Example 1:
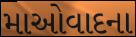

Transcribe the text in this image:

માઓવાદના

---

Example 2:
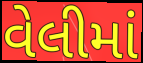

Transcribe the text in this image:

વેલીમાં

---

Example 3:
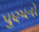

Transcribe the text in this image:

પુણ્યનો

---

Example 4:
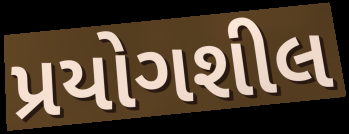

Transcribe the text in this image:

પ્રયોગશીલ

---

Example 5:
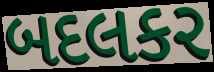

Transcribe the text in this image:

બદલકર